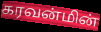
கரவன்மின்